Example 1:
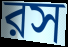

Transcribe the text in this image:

রস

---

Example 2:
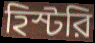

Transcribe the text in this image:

হিস্টরি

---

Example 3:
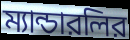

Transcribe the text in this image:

ম্যান্ডারলির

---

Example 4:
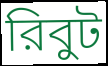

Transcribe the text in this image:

রিবুট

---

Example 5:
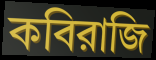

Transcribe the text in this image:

কবিরাজি